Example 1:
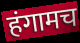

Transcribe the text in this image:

हंगामच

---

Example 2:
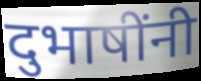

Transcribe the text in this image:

दुभाषींनी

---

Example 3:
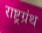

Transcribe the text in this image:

राष्ट्रग्रंथ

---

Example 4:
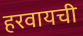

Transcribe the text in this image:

हरवायची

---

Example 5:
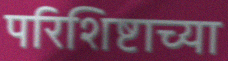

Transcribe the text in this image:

परिशिष्टाच्या